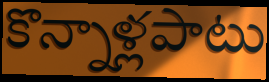
కొన్నాళ్లపాటు